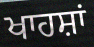
ਖਾਹਸ਼ਾਂ